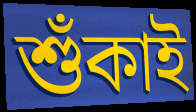
শুঁকাই